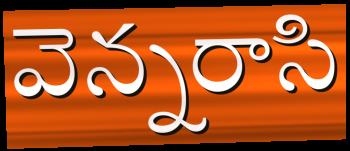
వెన్నరాసి